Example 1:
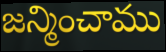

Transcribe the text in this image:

జన్మించాము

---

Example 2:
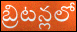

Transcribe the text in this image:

బ్రిటన్లలో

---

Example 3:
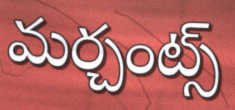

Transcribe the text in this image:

మర్చంట్స్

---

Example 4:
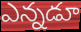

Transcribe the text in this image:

ఎన్నడూ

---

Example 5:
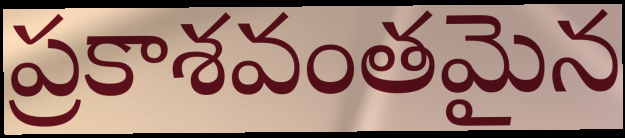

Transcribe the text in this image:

ప్రకాశవంతమైన